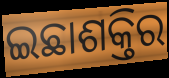
ଇଛାଶକ୍ତିର